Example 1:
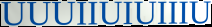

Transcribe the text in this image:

UUUIIUIUIIIU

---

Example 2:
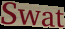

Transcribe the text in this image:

Swat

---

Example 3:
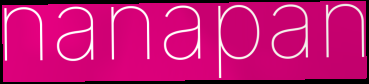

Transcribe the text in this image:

nanapan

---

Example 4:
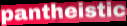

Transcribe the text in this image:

pantheistic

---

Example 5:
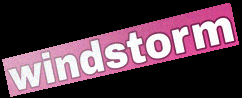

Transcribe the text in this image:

windstorm